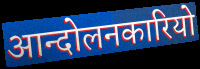
आन्दोलनकारियो